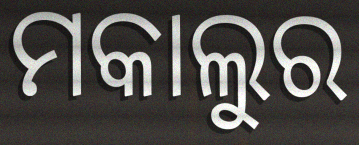
ମକାଲୁର